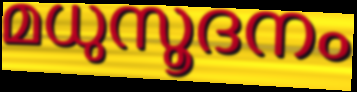
മധുസൂദനം